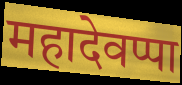
महादेवप्पा